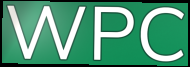
WPC